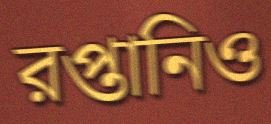
রপ্তানিও